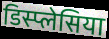
डिस्प्लेसिया